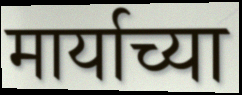
मार्याच्या